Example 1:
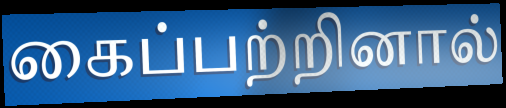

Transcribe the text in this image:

கைப்பற்றினால்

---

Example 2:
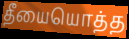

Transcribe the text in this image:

தீயையொத்த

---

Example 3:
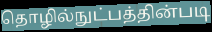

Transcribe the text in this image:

தொழில்நுட்பத்தின்படி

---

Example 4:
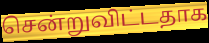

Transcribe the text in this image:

சென்றுவிட்டதாக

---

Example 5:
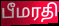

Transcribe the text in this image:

பீமரதி